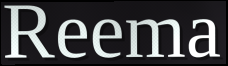
Reema